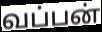
வப்பன்